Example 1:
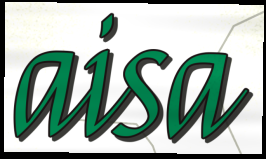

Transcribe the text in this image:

aisa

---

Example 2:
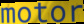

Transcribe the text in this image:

motor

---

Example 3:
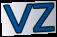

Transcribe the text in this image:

VZ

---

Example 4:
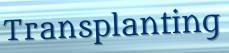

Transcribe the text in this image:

Transplanting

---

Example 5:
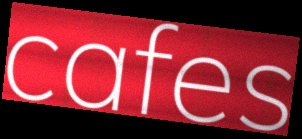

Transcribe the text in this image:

cafes